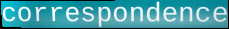
correspondence